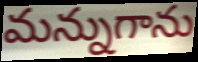
మన్నుగాను